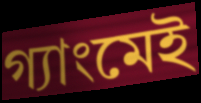
গ্যাংমেই